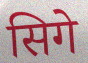
सिगे